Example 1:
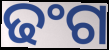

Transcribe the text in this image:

ଢଂଗ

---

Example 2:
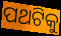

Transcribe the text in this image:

ପଥଟିକୁ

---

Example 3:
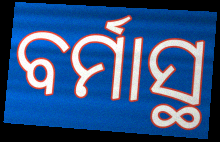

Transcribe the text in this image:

ବର୍ମାସ୍ଥ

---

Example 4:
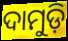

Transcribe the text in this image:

ଦାମୁଡ଼ି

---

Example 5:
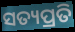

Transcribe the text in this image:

ସତ୍ୟପ୍ରତି